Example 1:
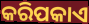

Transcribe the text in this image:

କରିପକାଏ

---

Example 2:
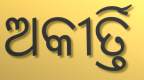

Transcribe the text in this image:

ଅକୀର୍ତ୍ତି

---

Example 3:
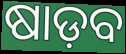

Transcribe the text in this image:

ଷାଡ଼ବ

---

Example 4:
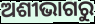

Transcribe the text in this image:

ଅଶୀଭାଗରୁ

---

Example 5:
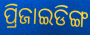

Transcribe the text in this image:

ପ୍ରିଜାଇଡିଙ୍ଗ